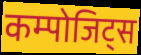
कम्पोजिट्स